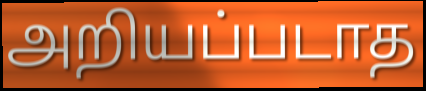
அறியப்படாத